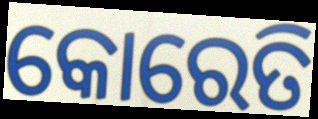
କୋରେତି